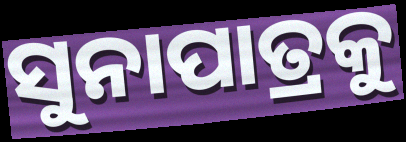
ସୁନାପାତ୍ରକୁ